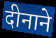
दीनाने